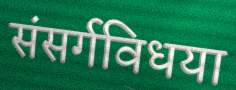
संसर्गविधया